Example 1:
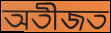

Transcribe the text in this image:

অতীজত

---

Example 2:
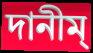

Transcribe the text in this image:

দানীম্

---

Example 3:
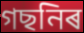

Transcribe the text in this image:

গছনিৰ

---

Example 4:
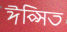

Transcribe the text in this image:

ঈপ্সিত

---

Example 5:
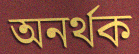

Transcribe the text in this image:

অনৰ্থক